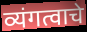
व्यंगत्वाचे